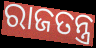
ରାଜତନ୍ତ୍ର